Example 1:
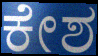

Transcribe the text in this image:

ಕೇಶ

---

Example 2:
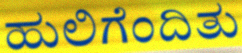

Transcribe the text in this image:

ಹುಲಿಗೆಂದಿತು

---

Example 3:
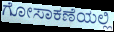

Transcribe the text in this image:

ಗೋಸಾಕಣೆಯಲ್ಲಿ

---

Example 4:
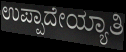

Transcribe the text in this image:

ಉಪ್ಪಾದೇಯ್ಯಾತಿ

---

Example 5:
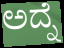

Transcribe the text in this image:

ಅದ್ನೆ